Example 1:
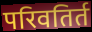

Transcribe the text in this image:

परिवतिर्त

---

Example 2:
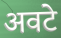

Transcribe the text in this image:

अवटे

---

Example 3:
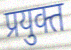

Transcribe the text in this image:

प्रयुक्त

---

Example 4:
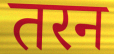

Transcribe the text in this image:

तरन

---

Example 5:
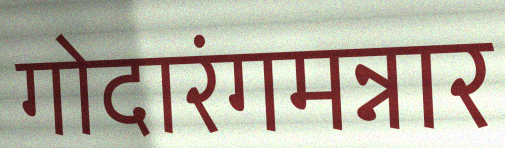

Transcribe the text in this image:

गोदारंगमन्नार